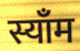
स्याँम